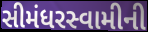
સીમંધરસ્વામીની